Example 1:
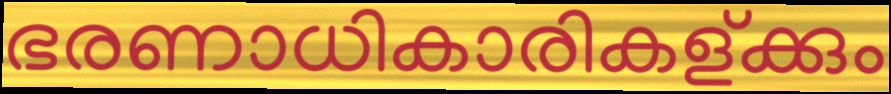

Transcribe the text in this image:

ഭരണാധികാരികള്ക്കും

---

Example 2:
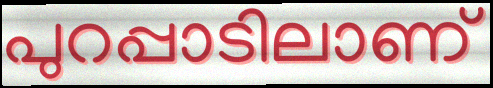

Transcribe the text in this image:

പുറപ്പാടിലാണ്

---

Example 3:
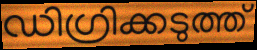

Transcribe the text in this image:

ഡിഗ്രിക്കടുത്ത്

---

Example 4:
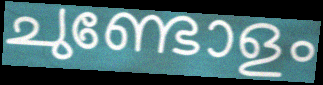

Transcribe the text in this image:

ചുണ്ടോളം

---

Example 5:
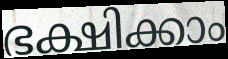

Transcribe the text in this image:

ഭക്ഷിക്കാം